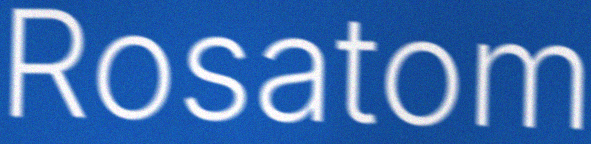
Rosatom